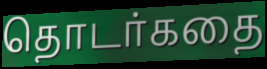
தொடர்கதை